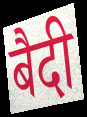
बैदी